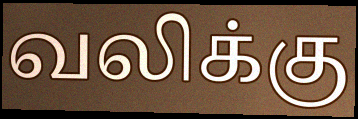
வலிக்கு